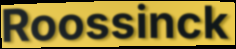
Roossinck